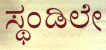
ಸ್ಥಂಡಿಲೇ